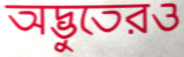
অদ্ভুতেরও